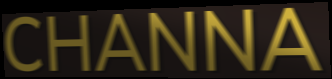
CHANNA